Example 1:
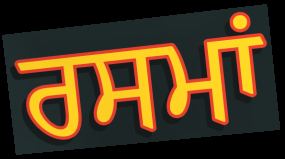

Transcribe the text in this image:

ਰਸਮਾਂ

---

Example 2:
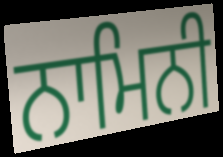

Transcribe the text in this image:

ਨਾਮਿਨੀ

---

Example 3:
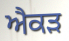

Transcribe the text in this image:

ਐਕੜ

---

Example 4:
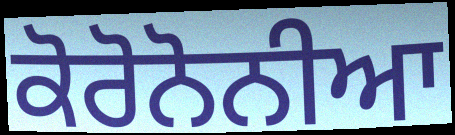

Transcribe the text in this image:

ਕੋਰੋਨੋਨੀਆ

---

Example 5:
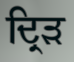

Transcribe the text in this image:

ਦ੍ਰਿੜ